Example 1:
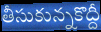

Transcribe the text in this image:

తీసుకున్నకొద్దీ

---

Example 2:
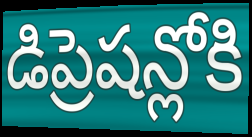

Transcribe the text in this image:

డిప్రెషన్లోకి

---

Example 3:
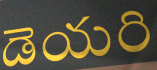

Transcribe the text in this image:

డెయరి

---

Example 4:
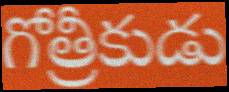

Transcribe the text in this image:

గోత్రీకుడు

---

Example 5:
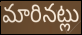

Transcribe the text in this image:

మారినట్లు